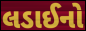
લડાઈનો